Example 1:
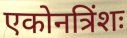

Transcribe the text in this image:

एकोनत्रिंशः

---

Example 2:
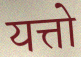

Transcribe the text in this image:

यत्तो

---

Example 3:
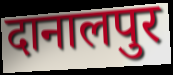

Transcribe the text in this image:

दानालपुर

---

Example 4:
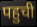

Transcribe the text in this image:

पहुची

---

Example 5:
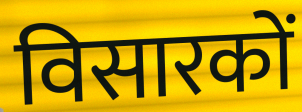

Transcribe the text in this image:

विसारकों